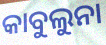
କାବୁଲୁନା